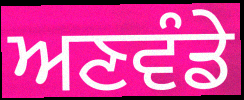
ਅਣਵੰਡੇ